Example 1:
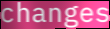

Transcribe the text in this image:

changes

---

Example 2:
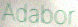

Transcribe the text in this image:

Adabor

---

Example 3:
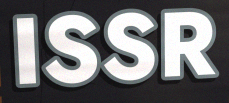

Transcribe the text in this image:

ISSR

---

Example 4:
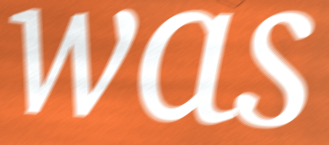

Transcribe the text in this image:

was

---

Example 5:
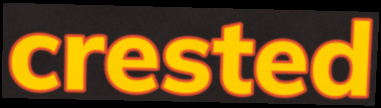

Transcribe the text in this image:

crested